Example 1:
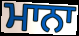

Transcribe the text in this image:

ਮਾਨਾ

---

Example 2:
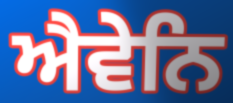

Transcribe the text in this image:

ਐਵੇਨਿ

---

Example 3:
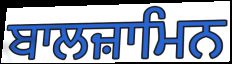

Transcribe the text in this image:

ਬਾਲਜ਼ਾਮਿਨ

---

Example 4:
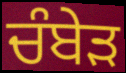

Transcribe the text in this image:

ਚੰਬੇੜ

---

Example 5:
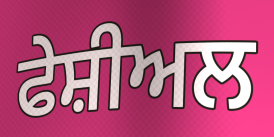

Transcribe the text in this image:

ਫੇਸ਼ੀਅਲ